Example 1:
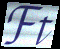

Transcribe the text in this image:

Ft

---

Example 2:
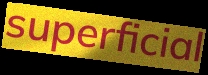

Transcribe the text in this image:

superficial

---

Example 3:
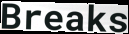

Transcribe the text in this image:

Breaks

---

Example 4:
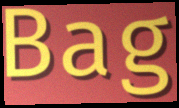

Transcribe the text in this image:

Bag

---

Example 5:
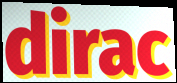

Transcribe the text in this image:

dirac